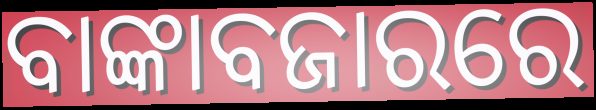
ବାଙ୍କାବଜାରରେ